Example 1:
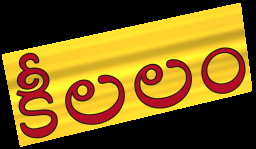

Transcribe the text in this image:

కీలలం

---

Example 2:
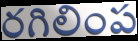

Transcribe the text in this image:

రగిలింప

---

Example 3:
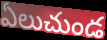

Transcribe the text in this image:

ఏలుచుండ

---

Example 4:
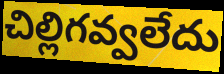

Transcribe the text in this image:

చిల్లిగవ్వలేదు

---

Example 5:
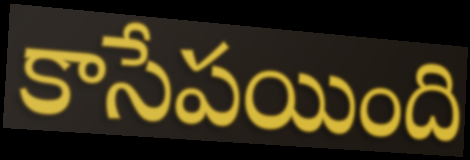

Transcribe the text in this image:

కాసేపయింది